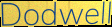
Dodwell